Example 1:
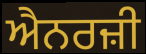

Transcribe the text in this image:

ਐਨਰਜ਼ੀ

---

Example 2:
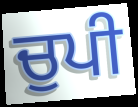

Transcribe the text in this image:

ਚੁਪੀ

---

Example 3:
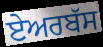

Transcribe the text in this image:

ਏਅਰਬੱਸ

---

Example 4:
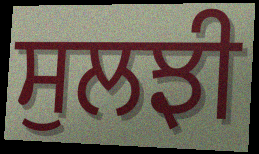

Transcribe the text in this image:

ਸੁਲਝੀ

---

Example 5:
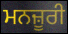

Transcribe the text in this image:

ਮਨਜ਼ੂਰੀ